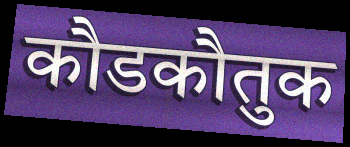
कौडकौतुक